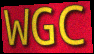
WGC